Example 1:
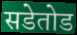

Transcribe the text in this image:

सडेतोड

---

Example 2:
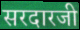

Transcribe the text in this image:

सरदारजी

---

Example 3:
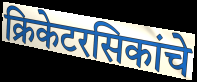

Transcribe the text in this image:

क्रिकेटरसिकांचे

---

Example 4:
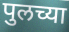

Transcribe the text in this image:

पुलच्या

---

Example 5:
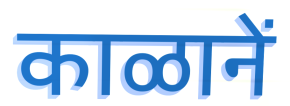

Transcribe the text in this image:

काळानें